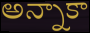
అన్నాకా